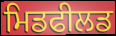
ਮਿਡਫੀਲਡ